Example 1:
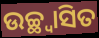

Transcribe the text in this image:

ଉଚ୍ଛ୍ୱାସିତ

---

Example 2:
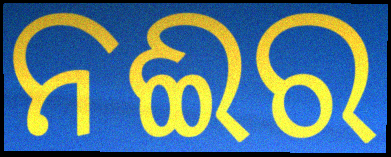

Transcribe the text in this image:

ନଈର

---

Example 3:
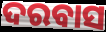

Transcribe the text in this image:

ଦରବାସ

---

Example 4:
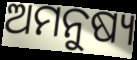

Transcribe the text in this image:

ଅମନୁଷ୍ୟ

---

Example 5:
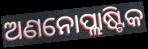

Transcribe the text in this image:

ଅଣନୋପ୍ଲାଷ୍ଟିକ